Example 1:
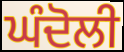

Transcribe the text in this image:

ਘੰਦੋਲੀ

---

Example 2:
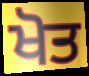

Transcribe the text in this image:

ਖੋਤ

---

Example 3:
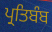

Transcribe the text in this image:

ਪ੍ਰਤਿਬੰਬ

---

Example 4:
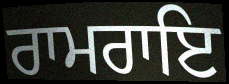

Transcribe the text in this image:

ਰਾਮਰਾਇ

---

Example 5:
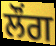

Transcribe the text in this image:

ਲੌਂਗ